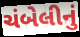
ચંબેલીનું